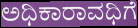
ಅಧಿಕಾರಾವಧಿಗೆ